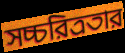
সচ্চরিত্রতার